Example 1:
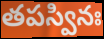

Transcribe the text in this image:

తపస్వినః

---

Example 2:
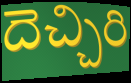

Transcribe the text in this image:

దెచ్చిరి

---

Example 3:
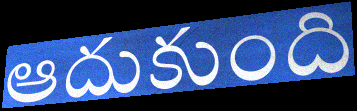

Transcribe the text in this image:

ఆదుకుంది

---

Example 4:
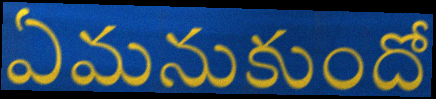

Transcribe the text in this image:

ఏమనుకుందో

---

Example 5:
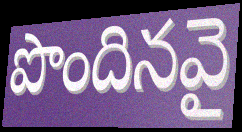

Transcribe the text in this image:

పొందినవై